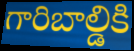
గారిబాల్డికి